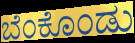
ಬೆಂಕೊಂಡು